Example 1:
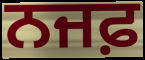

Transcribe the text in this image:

ਨਜਫ਼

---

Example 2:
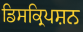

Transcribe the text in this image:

ਡਿਸਕ੍ਰਿਪਸ਼ਨ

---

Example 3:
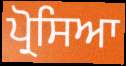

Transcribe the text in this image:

ਪ੍ਰੋਸਿਆ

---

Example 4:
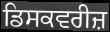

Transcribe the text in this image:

ਡਿਸਕਵਰੀਜ਼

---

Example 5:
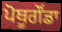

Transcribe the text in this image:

ਪੋਥੂਗੌਂਡਾ